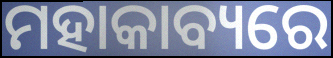
ମହାକାବ୍ୟରେ